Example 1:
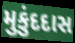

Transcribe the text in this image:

મુકુંદદાસ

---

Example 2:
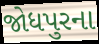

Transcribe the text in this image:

જોધપુરના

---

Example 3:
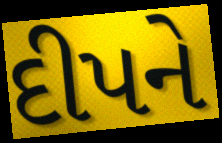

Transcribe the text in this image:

દીપને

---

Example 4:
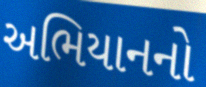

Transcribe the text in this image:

અભિયાનનો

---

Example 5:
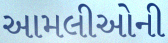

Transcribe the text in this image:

આમલીઓની